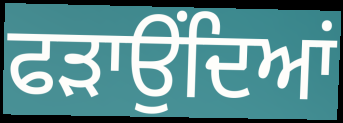
ਫੜਾਉਂਦਿਆਂ